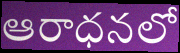
ఆరాధనలో